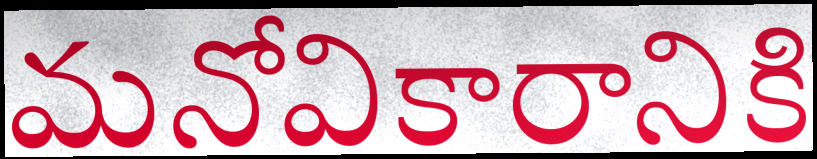
మనోవికారానికి